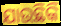
ଯାଉଛିକି